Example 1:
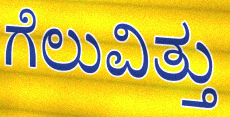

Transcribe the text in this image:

ಗೆಲುವಿತ್ತು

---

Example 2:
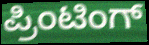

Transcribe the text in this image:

ಪ್ರಿಂಟಿಂಗ್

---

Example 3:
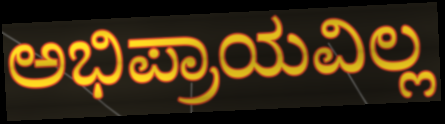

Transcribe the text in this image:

ಅಭಿಪ್ರಾಯವಿಲ್ಲ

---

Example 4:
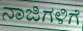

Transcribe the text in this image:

ನಾಜಿಗಳಿಗೆ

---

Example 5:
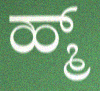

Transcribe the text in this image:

ಹ್ಮ್